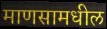
माणसामधील